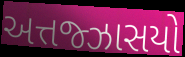
અત્તજ્ઝાસયો